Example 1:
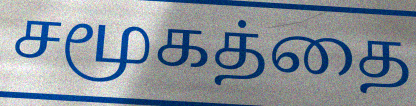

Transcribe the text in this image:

சமூகத்தை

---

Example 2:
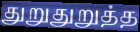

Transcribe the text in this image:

துறுதுறுத்த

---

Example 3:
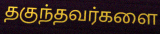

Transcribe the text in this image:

தகுந்தவர்களை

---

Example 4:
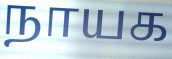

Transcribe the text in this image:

நாயக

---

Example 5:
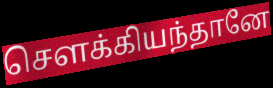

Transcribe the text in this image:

சௌக்கியந்தானே